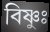
বিষ্ণুঃ